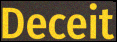
Deceit